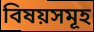
বিষয়সমূহ